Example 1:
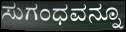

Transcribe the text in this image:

ಸುಗಂಧವನ್ನೂ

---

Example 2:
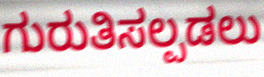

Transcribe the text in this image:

ಗುರುತಿಸಲ್ಪಡಲು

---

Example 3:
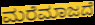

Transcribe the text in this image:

ಮರೆಮಾಜದೆ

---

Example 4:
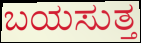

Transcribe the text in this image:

ಬಯಸುತ್ತ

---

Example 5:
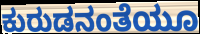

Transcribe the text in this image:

ಕುರುಡನಂತೆಯೂ